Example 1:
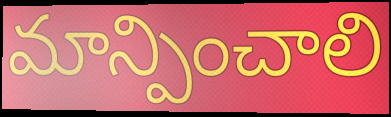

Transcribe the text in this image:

మాన్పించాలి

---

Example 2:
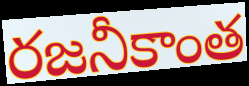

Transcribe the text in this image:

రజనీకాంత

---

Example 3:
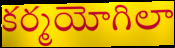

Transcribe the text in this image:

కర్మయోగిలా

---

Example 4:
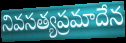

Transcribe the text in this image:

నివసత్యప్రమాదేన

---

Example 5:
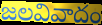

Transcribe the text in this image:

జలవివాదం